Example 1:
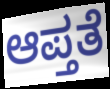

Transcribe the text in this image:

ಆಪ್ತತೆ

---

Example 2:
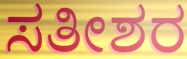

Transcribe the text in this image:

ಸತೀಶರ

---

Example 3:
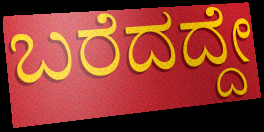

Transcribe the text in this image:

ಬರೆದದ್ದೇ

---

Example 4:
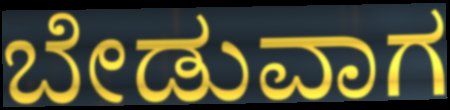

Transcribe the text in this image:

ಬೇಡುವಾಗ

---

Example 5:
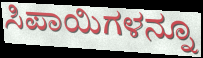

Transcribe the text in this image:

ಸಿಪಾಯಿಗಳನ್ನೂ